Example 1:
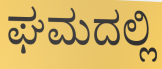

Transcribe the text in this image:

ಘಮದಲ್ಲಿ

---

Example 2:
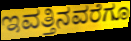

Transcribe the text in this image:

ಇವತ್ತಿನವರೆಗೂ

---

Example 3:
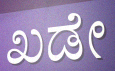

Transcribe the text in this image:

ಖಡೇ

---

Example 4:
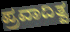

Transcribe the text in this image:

ಪ್ರವಾದಿತ್ವ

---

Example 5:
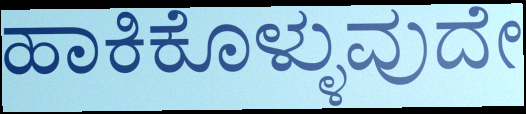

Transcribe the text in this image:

ಹಾಕಿಕೊಳ್ಳುವುದೇ